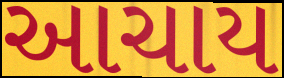
આચાય